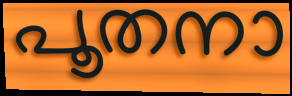
പൂതനാ